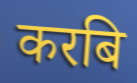
करबि